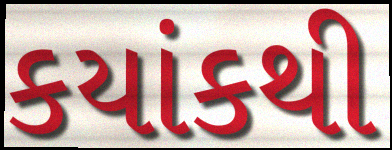
કયાંકથી